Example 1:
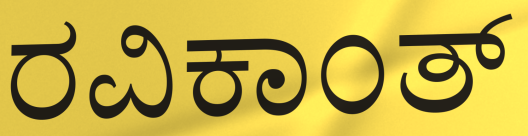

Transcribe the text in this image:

ರವಿಕಾಂತ್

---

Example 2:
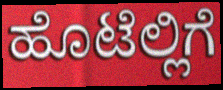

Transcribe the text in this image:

ಹೊಟೆಲ್ಲಿಗೆ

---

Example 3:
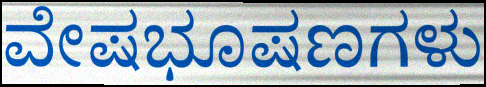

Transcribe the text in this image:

ವೇಷಭೂಷಣಗಳು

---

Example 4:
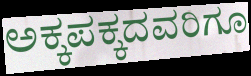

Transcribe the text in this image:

ಅಕ್ಕಪಕ್ಕದವರಿಗೂ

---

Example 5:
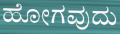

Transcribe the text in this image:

ಹೋಗವುದು